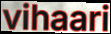
vihaari